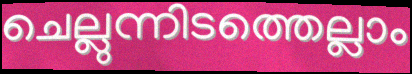
ചെല്ലുന്നിടത്തെല്ലാം